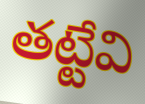
తట్టేవి